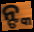
ନ୍ଙ୍କ